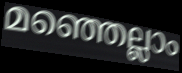
മഞ്ഞെല്ലാം